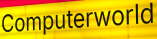
Computerworld